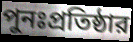
পুনঃপ্রতিষ্ঠার